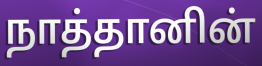
நாத்தானின்